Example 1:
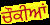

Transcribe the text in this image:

ਚੌਕੀਆਂ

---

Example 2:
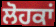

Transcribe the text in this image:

ਲੋਹਕਾਂ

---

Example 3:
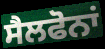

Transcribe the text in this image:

ਸੈਲਫੋਨਾਂ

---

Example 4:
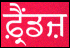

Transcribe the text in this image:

ਫ਼੍ਰੈਂਡਜ਼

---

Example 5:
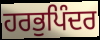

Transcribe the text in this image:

ਹਰਭੁਪਿੰਦਰ